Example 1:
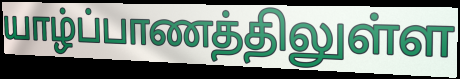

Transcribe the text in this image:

யாழ்ப்பாணத்திலுள்ள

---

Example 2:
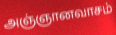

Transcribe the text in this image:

அஞ்ஞானவாசம்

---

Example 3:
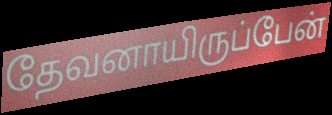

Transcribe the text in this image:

தேவனாயிருப்பேன்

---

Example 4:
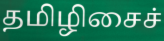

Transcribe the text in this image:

தமிழிசைச்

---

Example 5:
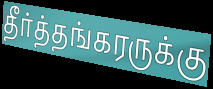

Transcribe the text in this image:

தீர்த்தங்கரருக்கு